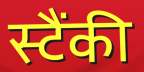
स्टैंकी